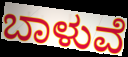
ಬಾಳುವೆ